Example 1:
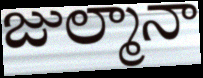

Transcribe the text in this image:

జుల్మానా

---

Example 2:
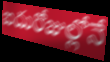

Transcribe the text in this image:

ఐదురోజుల్లోనే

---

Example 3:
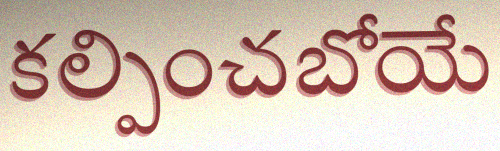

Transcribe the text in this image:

కల్పించబోయే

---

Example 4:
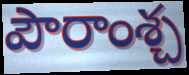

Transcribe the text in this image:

పౌరాంశ్చ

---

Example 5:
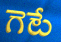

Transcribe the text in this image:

గెటే